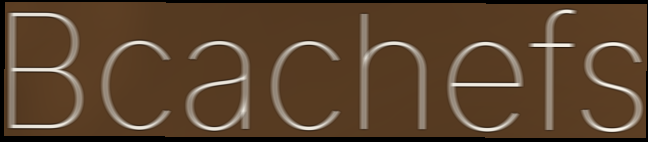
Bcachefs